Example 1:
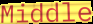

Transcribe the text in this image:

Middle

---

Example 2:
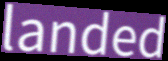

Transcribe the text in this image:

landed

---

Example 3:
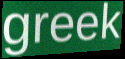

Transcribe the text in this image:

greek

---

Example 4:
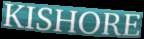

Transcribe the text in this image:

KISHORE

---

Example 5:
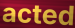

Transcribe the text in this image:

acted